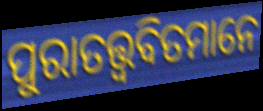
ପୁରାତତ୍ତ୍ୱବିତମାନେ